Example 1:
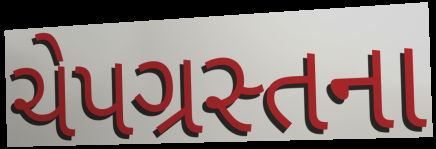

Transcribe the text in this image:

ચેપગ્રસ્તના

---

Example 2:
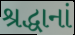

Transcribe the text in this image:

શ્રદ્ધાનાં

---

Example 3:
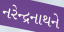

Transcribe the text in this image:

નરેન્દ્રનાથને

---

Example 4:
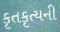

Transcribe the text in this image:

કૃતકૃત્યની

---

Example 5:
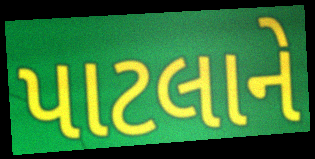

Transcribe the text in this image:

પાટલાને